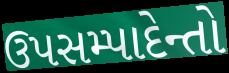
ઉપસમ્પાદેન્તો